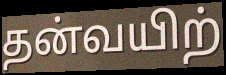
தன்வயிற்